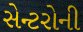
સેન્ટરોની